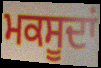
ਮਕਸੂਦਾਂ